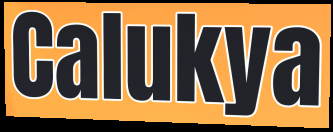
Calukya